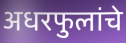
अधरफुलांचे